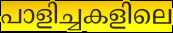
പാളിച്ചകളിലെ